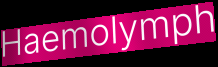
Haemolymph